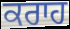
ਕਰਾਹ